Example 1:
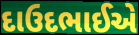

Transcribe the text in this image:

દાઉદભાઈએ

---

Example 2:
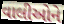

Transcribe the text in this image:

વાલીઓને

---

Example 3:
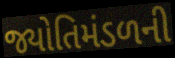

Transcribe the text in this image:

જ્યોતિમંડળની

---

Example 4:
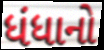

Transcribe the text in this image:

ધંધાનો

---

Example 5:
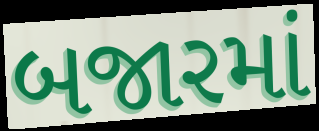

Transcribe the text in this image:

બજારમાં